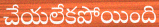
చేయలేకపోయింది